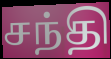
சந்தி